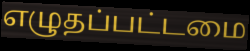
எழுதப்பட்டமை